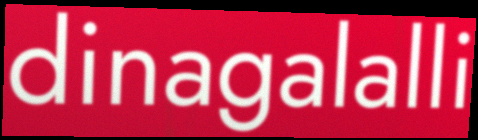
dinagalalli